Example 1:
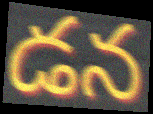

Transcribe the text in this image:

డన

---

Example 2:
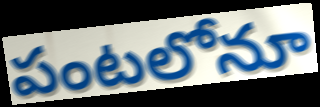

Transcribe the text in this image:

పంటలోనూ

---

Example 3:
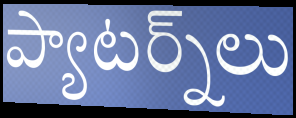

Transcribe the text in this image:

ప్యాటర్న్‌లు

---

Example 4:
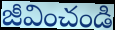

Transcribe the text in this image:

జీవించండి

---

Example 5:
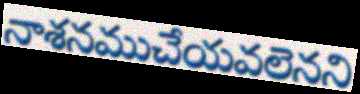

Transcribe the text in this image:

నాశనముచేయవలెనని